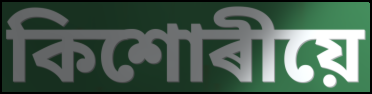
কিশোৰীয়ে